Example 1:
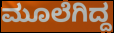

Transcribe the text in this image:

ಮೂಲೆಗಿದ್ದ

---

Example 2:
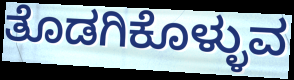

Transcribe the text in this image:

ತೊಡಗಿಕೊಳ್ಳುವ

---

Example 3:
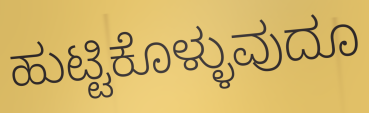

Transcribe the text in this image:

ಹುಟ್ಟಿಕೊಳ್ಳುವುದೂ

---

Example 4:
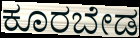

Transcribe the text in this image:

ಕೂರಬೇಡ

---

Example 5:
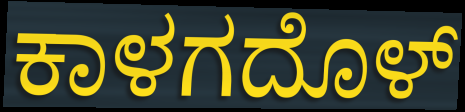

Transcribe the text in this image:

ಕಾಳಗದೊಳ್